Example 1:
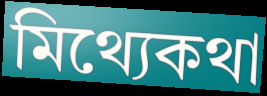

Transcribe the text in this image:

মিথ্যেকথা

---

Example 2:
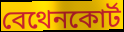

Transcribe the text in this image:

বেথেনকোর্ট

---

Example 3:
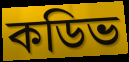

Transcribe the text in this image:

কডিভ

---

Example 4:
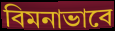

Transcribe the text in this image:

বিমনাভাবে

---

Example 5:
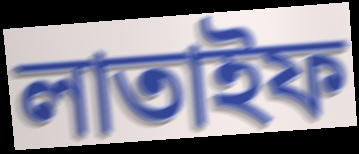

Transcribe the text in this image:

লাতাইফ